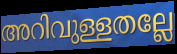
അറിവുള്ളതല്ലേ